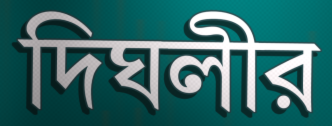
দিঘলীর